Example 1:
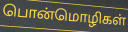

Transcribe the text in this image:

பொன்மொழிகள்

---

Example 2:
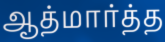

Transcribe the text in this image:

ஆத்மார்த்த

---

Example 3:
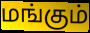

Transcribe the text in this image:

மங்கும்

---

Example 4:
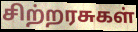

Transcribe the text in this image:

சிற்றரசுகள்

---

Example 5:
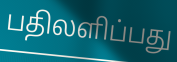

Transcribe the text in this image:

பதிலளிப்பது